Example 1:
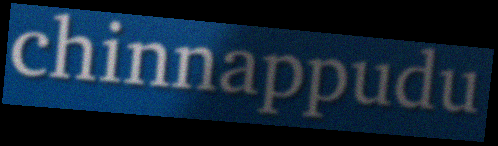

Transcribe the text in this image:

chinnappudu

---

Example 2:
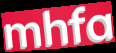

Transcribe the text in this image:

mhfa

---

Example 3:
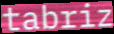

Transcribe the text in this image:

tabriz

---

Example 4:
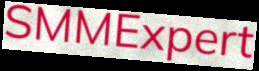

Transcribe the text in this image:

SMMExpert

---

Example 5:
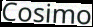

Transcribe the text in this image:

Cosimo